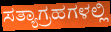
ಸತ್ಯಾಗ್ರಹಗಳಲ್ಲಿ